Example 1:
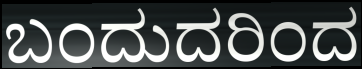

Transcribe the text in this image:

ಬಂದುದರಿಂದ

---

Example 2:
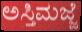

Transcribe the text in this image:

ಅಸ್ತಿಮಜ್ಜೆ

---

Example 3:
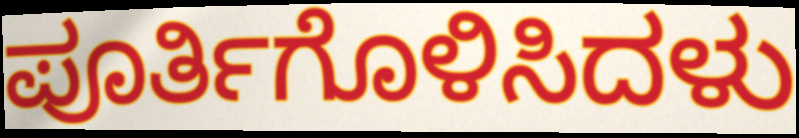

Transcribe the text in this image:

ಪೂರ್ತಿಗೊಳಿಸಿದಳು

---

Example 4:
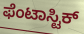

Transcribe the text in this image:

ಫೆಂಟಾಸ್ಟಿಕ್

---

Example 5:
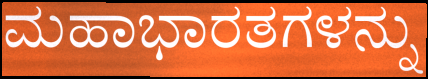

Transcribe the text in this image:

ಮಹಾಭಾರತಗಳನ್ನು